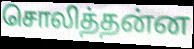
சொலித்தன்ன